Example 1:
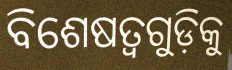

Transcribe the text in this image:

ବିଶେଷତ୍ୱଗୁଡ଼ିକୁ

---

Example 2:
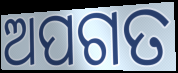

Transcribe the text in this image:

ଅପଗତ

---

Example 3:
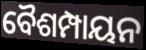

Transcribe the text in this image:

ବୈଶମ୍ପାୟନ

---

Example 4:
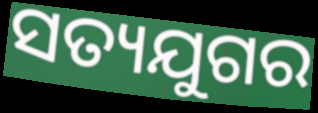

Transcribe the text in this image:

ସତ୍ୟଯୁଗର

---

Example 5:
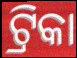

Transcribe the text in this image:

ଟ୍ରିକା